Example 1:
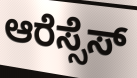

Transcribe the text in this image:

ಆರೆಸ್ಸೆಸ್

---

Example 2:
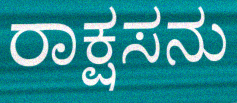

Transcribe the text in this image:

ರಾಕ್ಷಸನು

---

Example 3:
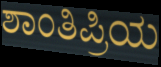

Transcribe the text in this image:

ಶಾಂತಿಪ್ರಿಯ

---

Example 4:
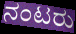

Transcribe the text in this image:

ನಂಟರು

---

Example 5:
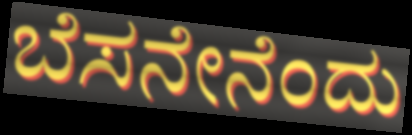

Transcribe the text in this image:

ಬೆಸನೇನೆಂದು